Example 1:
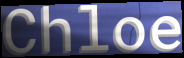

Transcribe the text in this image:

Chloe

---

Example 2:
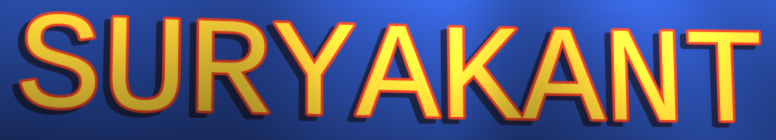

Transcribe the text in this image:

SURYAKANT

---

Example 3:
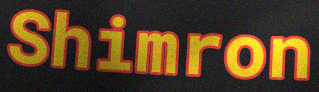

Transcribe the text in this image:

Shimron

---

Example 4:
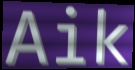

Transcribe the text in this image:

Aik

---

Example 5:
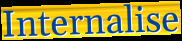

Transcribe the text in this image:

Internalise